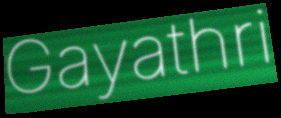
Gayathri